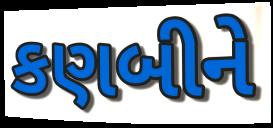
કણબીને